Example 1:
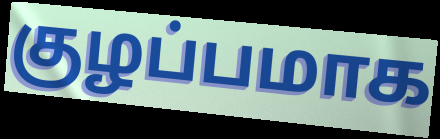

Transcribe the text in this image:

குழப்பமாக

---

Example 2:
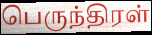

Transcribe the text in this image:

பெருந்திரள்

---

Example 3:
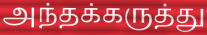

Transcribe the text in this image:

அந்தக்கருத்து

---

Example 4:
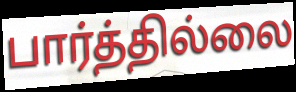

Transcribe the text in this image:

பார்த்தில்லை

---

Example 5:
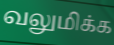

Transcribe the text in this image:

வலுமிக்க